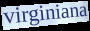
virginiana